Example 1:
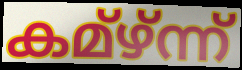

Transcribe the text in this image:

കമ്ഴ്ന്ന്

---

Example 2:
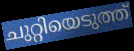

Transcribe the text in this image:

ചുറ്റിയെടുത്ത്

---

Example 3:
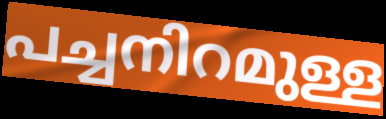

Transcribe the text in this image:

പച്ചനിറമുള്ള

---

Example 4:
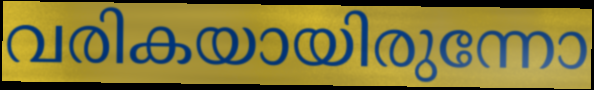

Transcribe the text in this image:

വരികയായിരുന്നോ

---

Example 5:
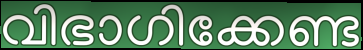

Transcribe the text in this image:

വിഭാഗിക്കേണ്ട